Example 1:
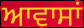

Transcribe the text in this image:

ਆਵਾਸਾਂ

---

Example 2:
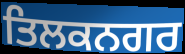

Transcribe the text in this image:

ਤਿਲਕਨਗਰ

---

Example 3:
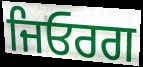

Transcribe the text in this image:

ਜਿਓਰਗ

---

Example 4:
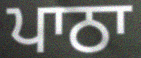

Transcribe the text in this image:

ਪਾਠਾ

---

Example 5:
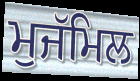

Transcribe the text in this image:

ਮੁਜੱਮਿਲ